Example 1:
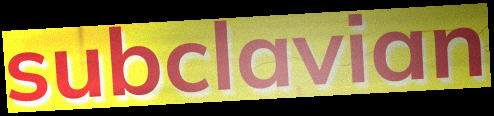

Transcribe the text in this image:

subclavian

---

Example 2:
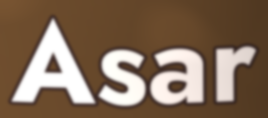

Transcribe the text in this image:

Asar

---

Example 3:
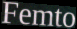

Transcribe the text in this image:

Femto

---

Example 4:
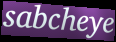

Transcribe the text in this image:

sabcheye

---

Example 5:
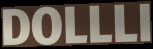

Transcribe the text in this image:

DOLLLI